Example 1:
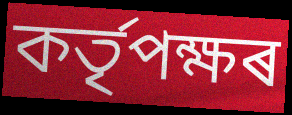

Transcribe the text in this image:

কৰ্তৃপক্ষৰ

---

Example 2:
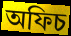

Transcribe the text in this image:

অফিচ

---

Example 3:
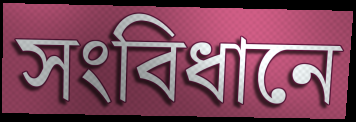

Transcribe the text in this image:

সংবিধানে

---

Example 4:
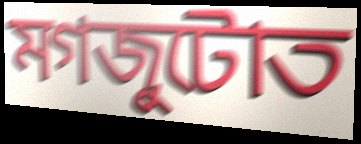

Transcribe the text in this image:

মগজুটোত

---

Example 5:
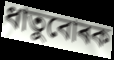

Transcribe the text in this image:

ধাতুবোৰক